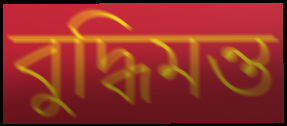
বুদ্ধিমন্ত